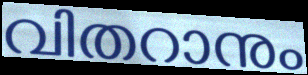
വിതറാനും